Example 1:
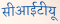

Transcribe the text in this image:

सीआईटीयू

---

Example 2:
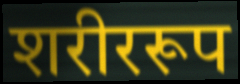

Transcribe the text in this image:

शरीररूप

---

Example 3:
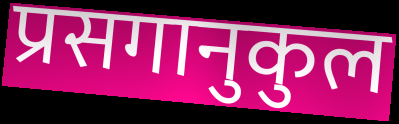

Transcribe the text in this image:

प्रसगानुकुल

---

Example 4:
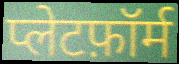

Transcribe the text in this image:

प्लेटफ़ॉर्म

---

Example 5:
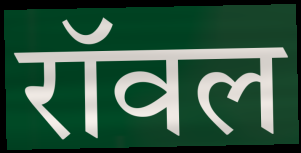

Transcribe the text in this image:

रॉवल